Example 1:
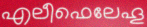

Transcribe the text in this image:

എലീഫെലേഹൂ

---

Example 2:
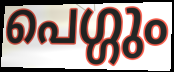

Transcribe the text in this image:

പെഗ്ഗും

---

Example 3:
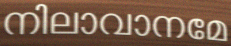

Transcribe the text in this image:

നിലാവാനമേ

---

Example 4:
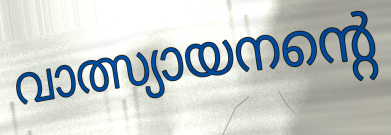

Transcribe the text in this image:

വാത്സ്യായനന്റെ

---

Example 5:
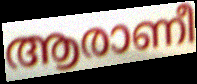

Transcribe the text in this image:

ആരാണീ